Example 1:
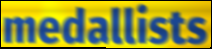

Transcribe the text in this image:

medallists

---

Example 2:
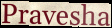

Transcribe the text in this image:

Pravesha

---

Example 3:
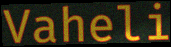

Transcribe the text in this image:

Vaheli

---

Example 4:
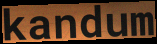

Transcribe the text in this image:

kandum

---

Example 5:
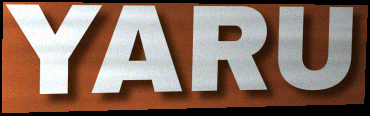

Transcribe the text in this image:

YARU